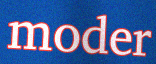
moder